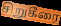
சிறுகீரை